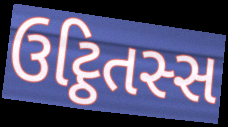
ઉટ્ઠિતસ્સ